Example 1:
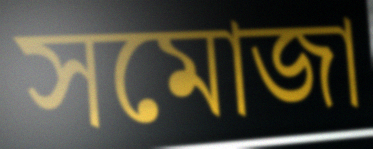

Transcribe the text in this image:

সমোজা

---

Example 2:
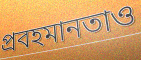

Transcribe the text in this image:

প্রবহমানতাও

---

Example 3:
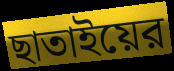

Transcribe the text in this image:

ছাতাইয়ের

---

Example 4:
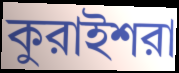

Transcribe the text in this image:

কুরাইশরা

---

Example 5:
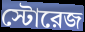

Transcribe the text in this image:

স্টোরেজ